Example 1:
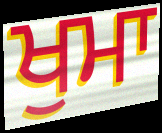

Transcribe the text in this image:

ਖੁਮਾ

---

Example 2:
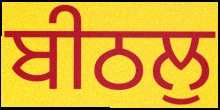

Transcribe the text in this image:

ਬੀਠਲੁ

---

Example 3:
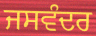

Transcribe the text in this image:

ਜਸਵੰਦਰ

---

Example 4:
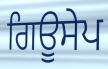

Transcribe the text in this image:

ਗਿਊਸੇਪ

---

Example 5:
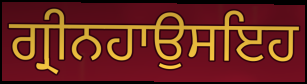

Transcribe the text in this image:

ਗ੍ਰੀਨਹਾਉਸਇਹ